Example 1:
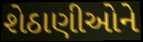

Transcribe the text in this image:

શેઠાણીઓને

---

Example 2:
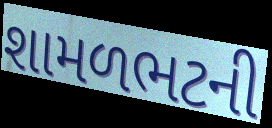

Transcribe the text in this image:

શામળભટની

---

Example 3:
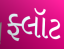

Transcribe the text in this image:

ફ્લૉટ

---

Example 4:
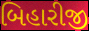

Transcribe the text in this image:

બિહારીજી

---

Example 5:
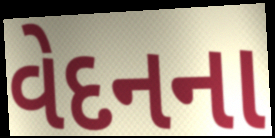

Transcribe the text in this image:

વેદનના